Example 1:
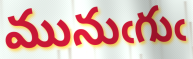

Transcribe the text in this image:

మునుఁగుఁ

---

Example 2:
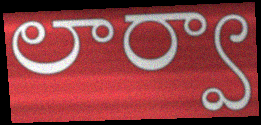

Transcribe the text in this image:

లార్వా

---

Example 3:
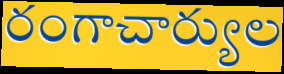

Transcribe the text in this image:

రంగాచార్యుల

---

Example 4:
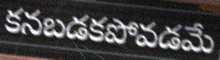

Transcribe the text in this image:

కనబడకపోవడమే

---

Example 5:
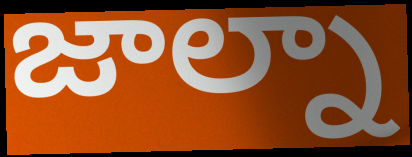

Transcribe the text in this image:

జాల్నా